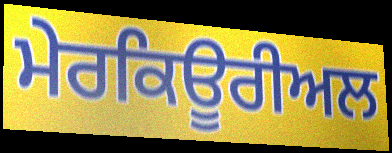
ਮੇਰਕਿਊਰੀਅਲ